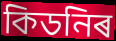
কিডনিৰ